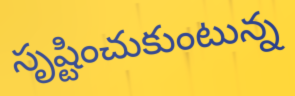
సృష్టించుకుంటున్న